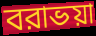
বরাভয়া